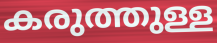
കരുത്തുള്ള